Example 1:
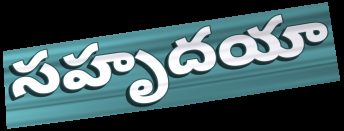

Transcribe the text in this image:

సహృదయా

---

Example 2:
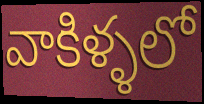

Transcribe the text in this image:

వాకిళ్ళలో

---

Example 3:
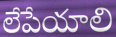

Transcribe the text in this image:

లేపేయాలి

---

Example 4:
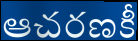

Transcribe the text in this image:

ఆచరణకీ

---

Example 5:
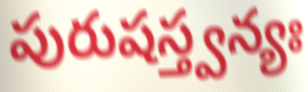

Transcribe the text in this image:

పురుషస్త్వన్యః